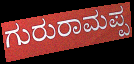
ಗುರುರಾಮಪ್ಪ